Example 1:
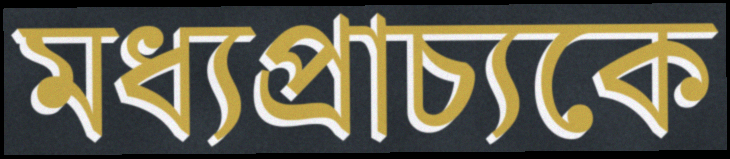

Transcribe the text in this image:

মধ্যপ্রাচ্যকে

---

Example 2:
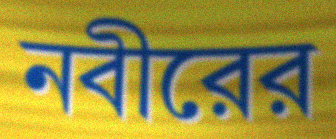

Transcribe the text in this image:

নবীরের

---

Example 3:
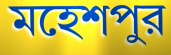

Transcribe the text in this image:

মহেশপুর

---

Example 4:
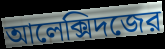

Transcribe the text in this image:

আলেক্সিদজের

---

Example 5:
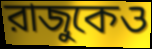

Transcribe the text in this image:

রাজুকেও